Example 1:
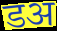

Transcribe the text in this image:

डअ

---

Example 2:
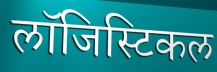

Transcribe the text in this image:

लॉजिस्टिकल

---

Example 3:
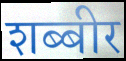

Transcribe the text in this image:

शब्बीर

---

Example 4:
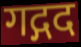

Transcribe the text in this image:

गद्गद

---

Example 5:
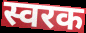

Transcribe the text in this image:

स्वरक